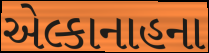
એલ્કાનાહના